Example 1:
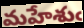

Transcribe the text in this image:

మహేశుఁ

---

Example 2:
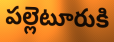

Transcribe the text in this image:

పల్లెటూరుకి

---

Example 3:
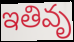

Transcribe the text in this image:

ఇతివృ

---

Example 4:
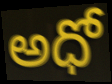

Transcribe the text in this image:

అధో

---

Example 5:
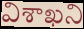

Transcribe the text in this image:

విశాఖని